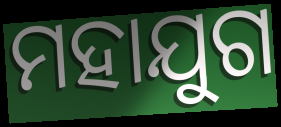
ମହାଯୁଗ